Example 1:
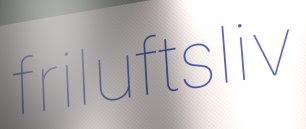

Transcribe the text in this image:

friluftsliv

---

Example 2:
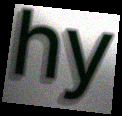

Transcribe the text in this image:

hy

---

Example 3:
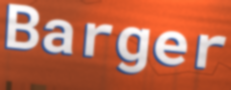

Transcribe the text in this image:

Barger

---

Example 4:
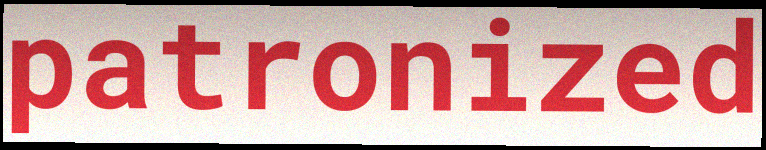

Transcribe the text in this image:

patronized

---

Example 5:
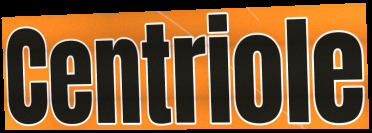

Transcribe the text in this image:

Centriole